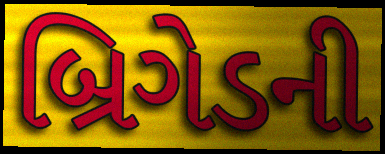
બ્રિગેડની